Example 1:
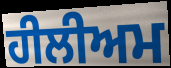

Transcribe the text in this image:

ਹੀਲੀਅਮ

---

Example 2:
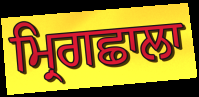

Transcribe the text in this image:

ਮ੍ਰਿਗਛਾਲਾ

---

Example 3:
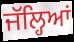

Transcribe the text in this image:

ਜੱਲ੍ਹਿਆਂ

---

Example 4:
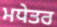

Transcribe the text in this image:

ਮਧੇਤਰ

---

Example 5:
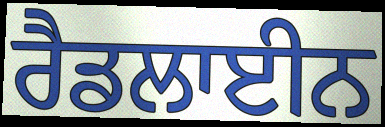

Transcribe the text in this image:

ਰੈਡਲਾਈਨ